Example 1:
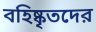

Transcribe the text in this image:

বহিষ্কৃতদের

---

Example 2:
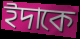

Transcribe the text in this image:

ইদাকে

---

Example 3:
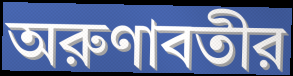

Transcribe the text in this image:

অরুণাবতীর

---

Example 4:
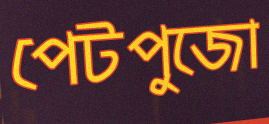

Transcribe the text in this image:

পেটপুজো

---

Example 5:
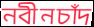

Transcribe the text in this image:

নবীনচাঁদ